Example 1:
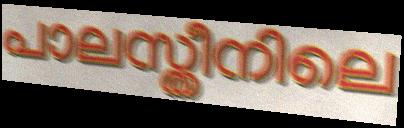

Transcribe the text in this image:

പാലസ്തീനിലെ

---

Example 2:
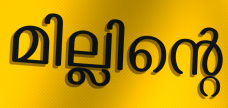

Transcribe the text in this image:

മില്ലിന്റെ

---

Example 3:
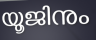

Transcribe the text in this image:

യൂജിനും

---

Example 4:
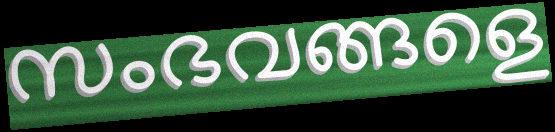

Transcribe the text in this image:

സംഭവങ്ങളെ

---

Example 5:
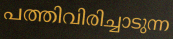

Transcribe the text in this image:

പത്തിവിരിച്ചാടുന്ന